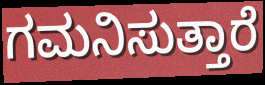
ಗಮನಿಸುತ್ತಾರೆ